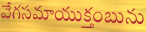
వేగసమాయుక్తంబును